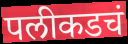
पलीकडचं